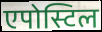
एपोस्टिल